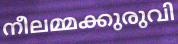
നീലമ്മക്കുരുവി